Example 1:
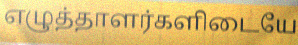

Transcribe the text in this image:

எழுத்தாளர்களிடையே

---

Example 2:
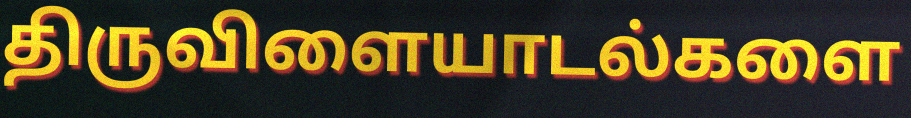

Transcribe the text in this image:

திருவிளையாடல்களை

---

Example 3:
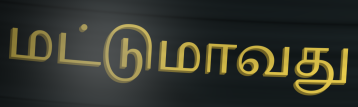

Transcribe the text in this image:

மட்டுமாவது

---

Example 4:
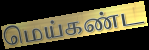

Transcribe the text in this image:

மெய்கண்ட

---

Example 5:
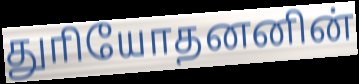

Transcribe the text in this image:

துரியோதனனின்